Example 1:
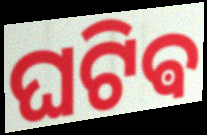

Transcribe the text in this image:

ଘଟିଵ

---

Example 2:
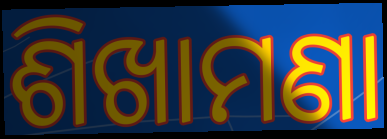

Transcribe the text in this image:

ଶିଖାମଣା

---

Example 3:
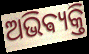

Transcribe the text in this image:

ଅଭିଵ୍ୟକ୍ତି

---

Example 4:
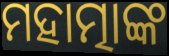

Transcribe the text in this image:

ମହାତ୍ମାଙ୍କ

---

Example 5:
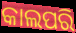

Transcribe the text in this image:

କାଲପରି